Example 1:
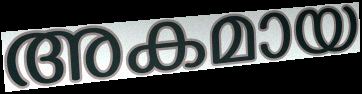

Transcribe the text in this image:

അകമായ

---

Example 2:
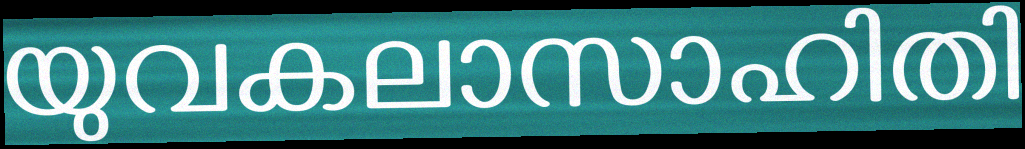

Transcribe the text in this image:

യുവകലാസാഹിതി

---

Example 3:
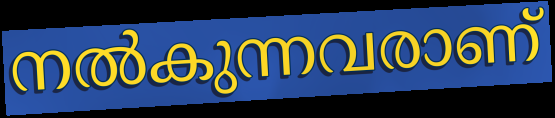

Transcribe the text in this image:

നൽകുന്നവരാണ്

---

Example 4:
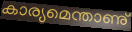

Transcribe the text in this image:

കാര്യമെന്താണു്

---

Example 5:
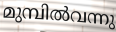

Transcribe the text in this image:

മുമ്പിൽവന്നു